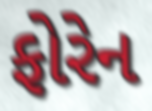
ફોરેન